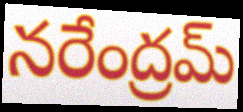
నరేంద్రమ్